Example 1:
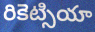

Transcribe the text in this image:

రికెట్సియా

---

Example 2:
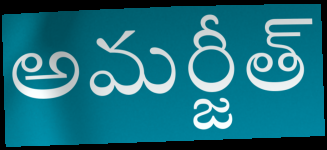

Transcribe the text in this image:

అమర్జీత్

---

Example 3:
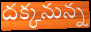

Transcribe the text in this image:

దక్కనున్న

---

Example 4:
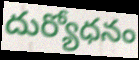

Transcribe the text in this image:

దుర్యోధనం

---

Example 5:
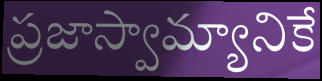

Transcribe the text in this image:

ప్రజాస్వామ్యానికే